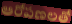
ఆరోపణలతో